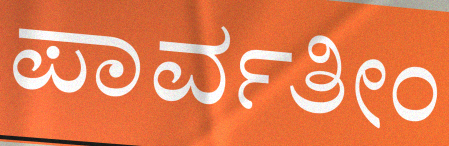
ಪಾರ್ವತೀಂ